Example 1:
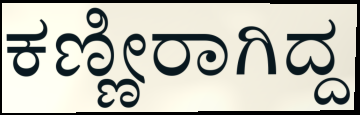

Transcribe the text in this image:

ಕಣ್ಣೀರಾಗಿದ್ದ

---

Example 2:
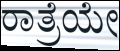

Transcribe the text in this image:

ರಾತ್ರೆಯೇ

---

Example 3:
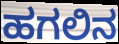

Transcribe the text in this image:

ಹಗಲಿನ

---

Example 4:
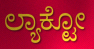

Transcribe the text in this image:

ಲ್ಯಾಕ್ಟೋ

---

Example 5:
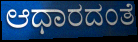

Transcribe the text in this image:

ಆಧಾರದಂತೆ